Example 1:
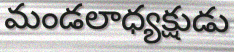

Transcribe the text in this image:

మండలాధ్యక్షుడు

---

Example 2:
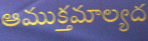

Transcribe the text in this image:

ఆముక్తమాల్యద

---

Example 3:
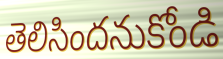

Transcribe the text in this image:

తెలిసిందనుకోండి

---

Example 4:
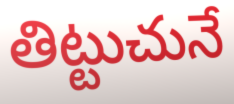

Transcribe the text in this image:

తిట్టుచునే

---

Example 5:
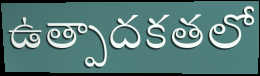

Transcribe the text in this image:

ఉత్పాదకతలో